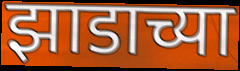
झाडाच्या